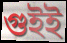
গুইই